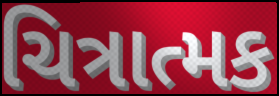
ચિત્રાત્મક